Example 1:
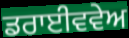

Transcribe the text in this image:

ਡਰਾਈਵਵੇਅ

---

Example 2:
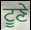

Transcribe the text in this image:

ਟੂਣੇ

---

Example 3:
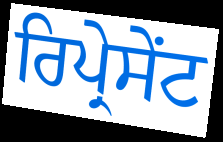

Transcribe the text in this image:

ਰਿਪ੍ਰੇਸੇੰਟ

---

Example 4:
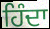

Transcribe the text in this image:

ਹਿੰਦਾ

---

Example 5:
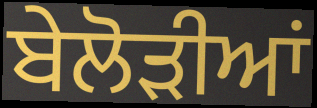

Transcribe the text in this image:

ਬੇਲੋੜੀਆਂ